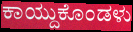
ಕಾಯ್ದುಕೊಂಡಳು